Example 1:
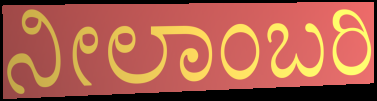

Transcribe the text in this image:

ನೀಲಾಂಬರಿ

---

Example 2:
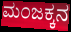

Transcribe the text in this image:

ಮಂಜಕ್ಕನ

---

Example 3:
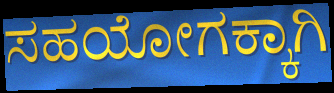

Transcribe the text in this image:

ಸಹಯೋಗಕ್ಕಾಗಿ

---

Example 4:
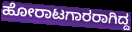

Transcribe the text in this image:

ಹೋರಾಟಗಾರರಾಗಿದ್ದ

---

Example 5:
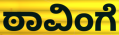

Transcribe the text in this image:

ಠಾವಿಂಗೆ